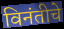
विनंतीचे